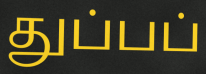
துப்பப்